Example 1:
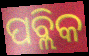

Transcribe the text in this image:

ପବ୍ଲିକ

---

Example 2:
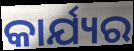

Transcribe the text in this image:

କାର୍ଯ୍ୟର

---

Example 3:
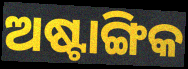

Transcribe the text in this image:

ଅଷ୍ଟାଙ୍ଗିକ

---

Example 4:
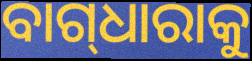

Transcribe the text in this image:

ବାଗ୍‌ଧାରାକୁ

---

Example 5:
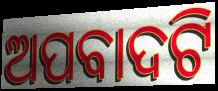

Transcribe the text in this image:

ଅପବାଦଟି